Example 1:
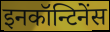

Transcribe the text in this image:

इनकॉन्टिनेंस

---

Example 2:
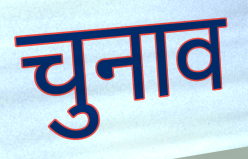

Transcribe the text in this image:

चुनाव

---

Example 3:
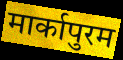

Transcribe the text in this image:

मार्कापुरम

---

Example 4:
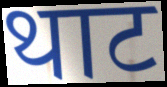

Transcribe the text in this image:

थाट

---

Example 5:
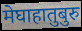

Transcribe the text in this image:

मेघाहातुबुरु